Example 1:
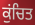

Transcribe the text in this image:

ਕੁਂਚਿਤ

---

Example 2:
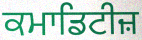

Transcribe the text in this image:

ਕਮਾਡਿਟੀਜ਼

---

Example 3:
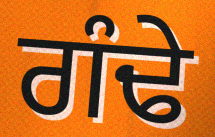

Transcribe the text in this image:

ਗੰਢੇ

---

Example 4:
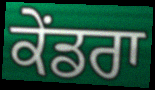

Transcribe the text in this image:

ਕੇਂਡਰਾ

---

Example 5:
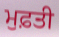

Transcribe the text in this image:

ਮੁਫ਼ਤੀ